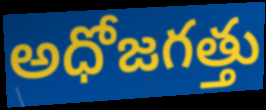
అధోజగత్తు